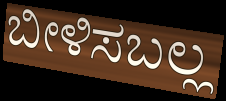
ಬೀಳಿಸಬಲ್ಲ